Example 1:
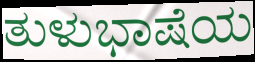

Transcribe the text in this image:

ತುಳುಭಾಷೆಯ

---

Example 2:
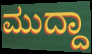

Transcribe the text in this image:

ಮುದ್ದಾ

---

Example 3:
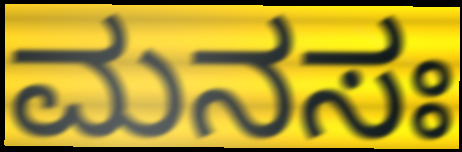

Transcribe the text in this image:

ಮನಸಃ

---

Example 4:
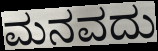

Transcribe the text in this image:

ಮನವದು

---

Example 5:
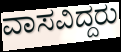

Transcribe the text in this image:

ವಾಸವಿದ್ದರು